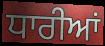
ਧਾਰੀਆਂ